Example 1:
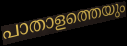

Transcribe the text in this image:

പാതാളത്തെയും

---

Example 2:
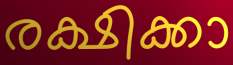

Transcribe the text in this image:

രക്ഷിക്കാ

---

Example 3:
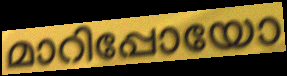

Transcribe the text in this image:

മാറിപ്പോയോ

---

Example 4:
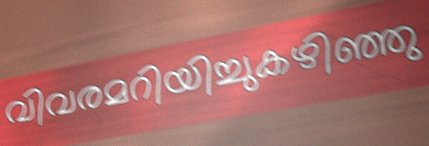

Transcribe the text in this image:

വിവരമറിയിച്ചുകഴിഞ്ഞു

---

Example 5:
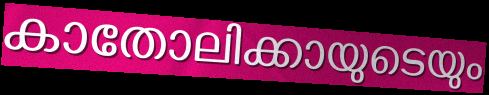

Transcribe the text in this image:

കാതോലിക്കായുടെയും